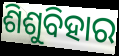
ଶିଶୁବିହାର